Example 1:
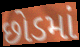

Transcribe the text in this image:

છોડમાં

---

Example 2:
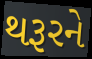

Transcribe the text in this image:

થરૂરને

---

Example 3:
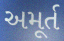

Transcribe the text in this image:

અમૂર્ત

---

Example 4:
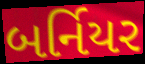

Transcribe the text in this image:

બર્નિયર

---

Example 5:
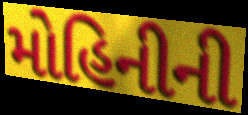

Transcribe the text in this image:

મોહિનીની